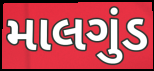
માલગુંડ